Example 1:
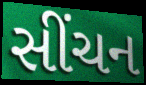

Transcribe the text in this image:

સીંચન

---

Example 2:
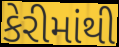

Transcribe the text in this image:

કેરીમાંથી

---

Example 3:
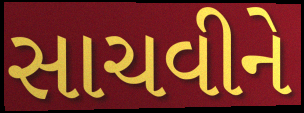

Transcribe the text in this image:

સાચવીને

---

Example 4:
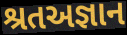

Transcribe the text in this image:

શ્રતઅજ્ઞાન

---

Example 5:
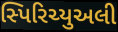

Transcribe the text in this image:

સ્પિરિચ્યુઅલી